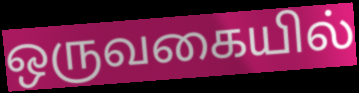
ஒருவகையில்